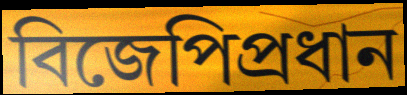
বিজেপিপ্রধান